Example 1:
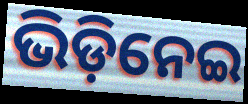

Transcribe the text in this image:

ଭିଡ଼ିନେଇ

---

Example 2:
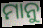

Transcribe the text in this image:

ମାନୁ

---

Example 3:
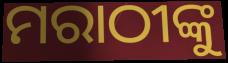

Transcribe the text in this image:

ମରାଠୀଙ୍କୁ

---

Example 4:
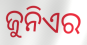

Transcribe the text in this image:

ଜୁନିଏର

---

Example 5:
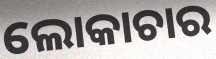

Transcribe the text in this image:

ଲୋକାଚାର